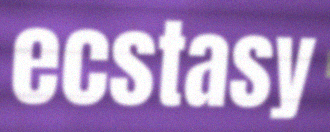
ecstasy